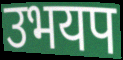
उभयप